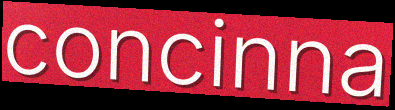
concinna